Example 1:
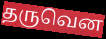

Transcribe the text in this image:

தருவென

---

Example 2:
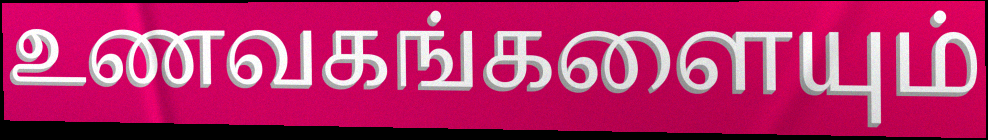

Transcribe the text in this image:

உணவகங்களையும்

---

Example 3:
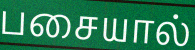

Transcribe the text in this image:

பசையால்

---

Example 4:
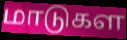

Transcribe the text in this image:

மாடுகள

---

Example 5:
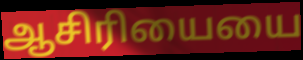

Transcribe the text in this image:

ஆசிரியையை